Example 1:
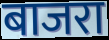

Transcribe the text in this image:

बाजरा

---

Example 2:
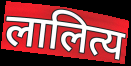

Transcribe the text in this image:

लालित्य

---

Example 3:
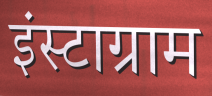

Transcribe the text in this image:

इंस्टाग्राम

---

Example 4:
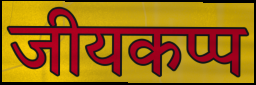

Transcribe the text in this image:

जीयकप्प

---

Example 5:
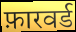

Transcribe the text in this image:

फ़ारवर्ड